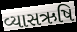
વ્યાસઋષિ